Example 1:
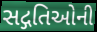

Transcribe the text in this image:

સદ્ગતિઓની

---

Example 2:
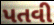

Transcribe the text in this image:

પતવી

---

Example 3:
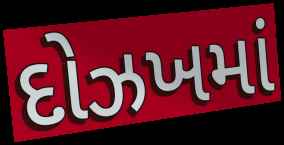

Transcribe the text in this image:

દોઝખમાં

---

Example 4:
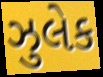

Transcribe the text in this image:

ઝુલેક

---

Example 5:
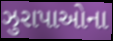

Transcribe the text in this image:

ઝુરાપાઓના